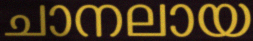
ചാനലായ